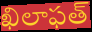
ఖిలాఫత్